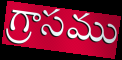
గ్రాసము